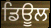
ਡਿਊਲ